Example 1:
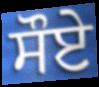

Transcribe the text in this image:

ਸੌਏ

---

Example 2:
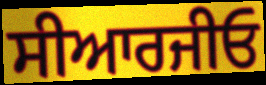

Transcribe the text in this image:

ਸੀਆਰਜੀਓ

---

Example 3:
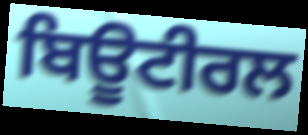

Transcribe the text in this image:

ਬਿਊਟੀਰਲ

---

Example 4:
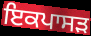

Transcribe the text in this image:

ਇਕਪਾਸੜ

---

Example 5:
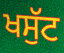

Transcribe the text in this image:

ਖਸੁੱਟ